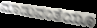
ಮಾಡುವಂತೆಯೂ